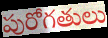
పురోగతులు